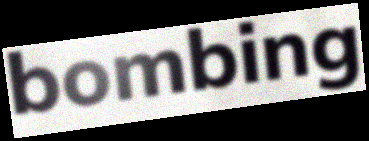
bombing